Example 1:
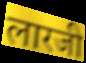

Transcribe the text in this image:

लारजी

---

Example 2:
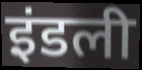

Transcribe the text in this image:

इंडली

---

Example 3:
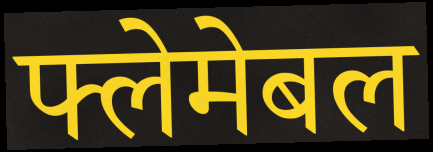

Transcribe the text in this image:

फ्लेमेबल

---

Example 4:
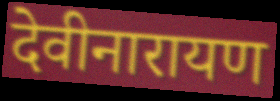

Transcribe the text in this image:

देवीनारायण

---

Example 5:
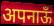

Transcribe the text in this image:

अपनाऊँ